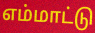
எம்மாட்டு